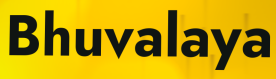
Bhuvalaya